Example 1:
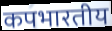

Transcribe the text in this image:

कपभारतीय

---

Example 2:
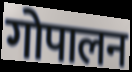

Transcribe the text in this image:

गोपालन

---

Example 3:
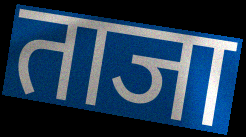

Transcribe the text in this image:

ताजा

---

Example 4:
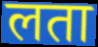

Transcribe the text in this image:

लता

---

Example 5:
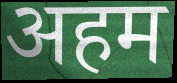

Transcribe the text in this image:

अहम